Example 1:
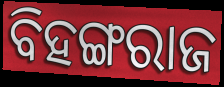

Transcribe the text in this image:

ବିହଙ୍ଗରାଜ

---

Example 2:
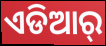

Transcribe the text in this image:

ଏଡିଆର୍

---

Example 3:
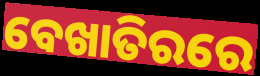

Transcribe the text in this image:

ବେଖାତିରରେ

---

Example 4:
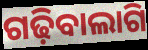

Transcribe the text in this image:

ଗଢ଼ିବାଲାଗି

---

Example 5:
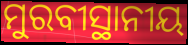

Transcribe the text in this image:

ମୁରବୀସ୍ଥାନୀୟ